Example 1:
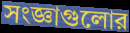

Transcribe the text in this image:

সংজ্ঞাগুলোর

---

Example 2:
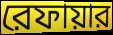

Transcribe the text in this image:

রেফায়ার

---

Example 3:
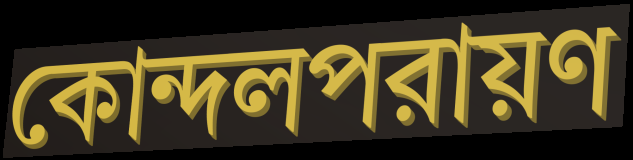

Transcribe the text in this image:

কোন্দলপরায়ণ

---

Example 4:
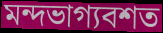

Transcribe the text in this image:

মন্দভাগ্যবশত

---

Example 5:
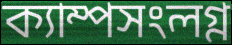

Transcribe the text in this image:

ক্যাম্পসংলগ্ন